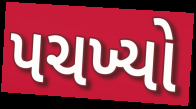
પચખ્યો